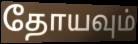
தோயவும்